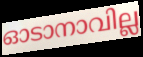
ഓടാനാവില്ല